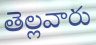
తెల్లవారు